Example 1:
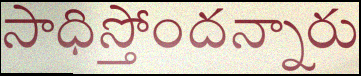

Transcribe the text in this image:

సాధిస్తోందన్నారు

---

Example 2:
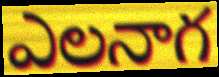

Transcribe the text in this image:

ఎలనాగ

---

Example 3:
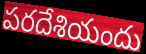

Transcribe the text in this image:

పరదేశియందు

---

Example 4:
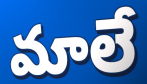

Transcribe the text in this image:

మాలే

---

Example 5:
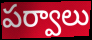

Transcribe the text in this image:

పర్వాలు